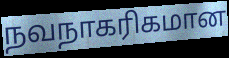
நவநாகரிகமான